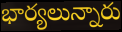
భార్యలున్నారు